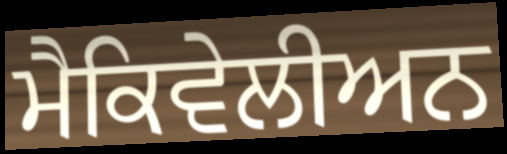
ਮੈਕਿਵੇਲੀਅਨ